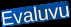
Evaluvu